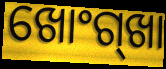
ଖୋଂଗ୍‍ଖା